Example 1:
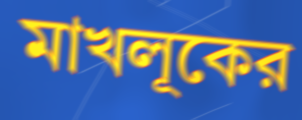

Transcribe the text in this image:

মাখলূকের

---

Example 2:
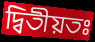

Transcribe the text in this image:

দ্বিতীয়তঃ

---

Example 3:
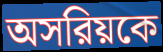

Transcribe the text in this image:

অসরিয়কে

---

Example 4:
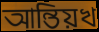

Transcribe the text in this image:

আন্তিয়খ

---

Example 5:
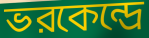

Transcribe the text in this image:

ভরকেন্দ্রে